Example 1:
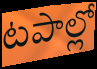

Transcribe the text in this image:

టపాల్లో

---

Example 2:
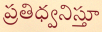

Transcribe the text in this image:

ప్రతిధ్వనిస్తూ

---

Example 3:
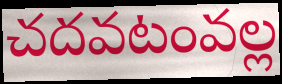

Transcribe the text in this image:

చదవటంవల్ల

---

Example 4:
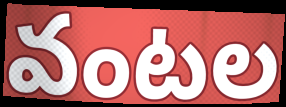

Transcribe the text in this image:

వంటల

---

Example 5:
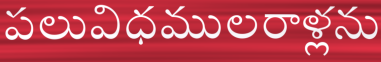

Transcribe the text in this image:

పలువిధములరాళ్లను